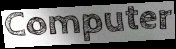
Computer